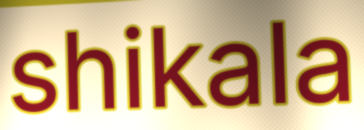
shikala